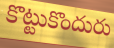
కొట్టుకొందురు